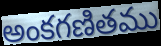
అంకగణితము